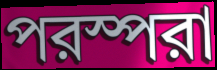
পরস্পরা